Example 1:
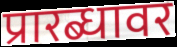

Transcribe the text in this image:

प्रारब्धावर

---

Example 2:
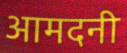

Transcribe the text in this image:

आमदनी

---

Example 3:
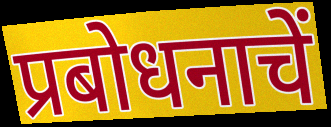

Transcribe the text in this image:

प्रबोधनाचें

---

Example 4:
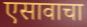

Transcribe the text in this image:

एसावाचा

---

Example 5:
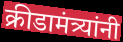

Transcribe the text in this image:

क्रीडामंत्र्यांनी